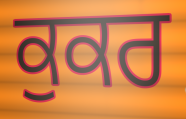
ਕੁਕਰ